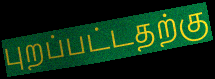
புறப்பட்டதற்கு